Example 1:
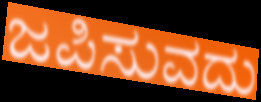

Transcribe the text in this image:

ಜಪಿಸುವದು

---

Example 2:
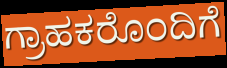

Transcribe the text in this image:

ಗ್ರಾಹಕರೊಂದಿಗೆ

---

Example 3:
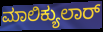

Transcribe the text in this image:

ಮಾಲಿಕ್ಯುಲಾರ್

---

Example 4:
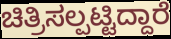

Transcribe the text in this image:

ಚಿತ್ರಿಸಲ್ಪಟ್ಟಿದ್ದಾರೆ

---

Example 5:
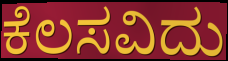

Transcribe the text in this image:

ಕೆಲಸವಿದು